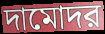
দামোদর